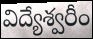
విద్యేశ్వరీం